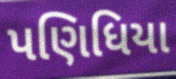
પણિધિયા